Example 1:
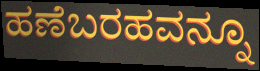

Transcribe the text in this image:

ಹಣೆಬರಹವನ್ನೂ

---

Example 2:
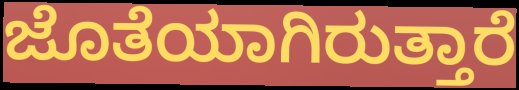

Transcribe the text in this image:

ಜೊತೆಯಾಗಿರುತ್ತಾರೆ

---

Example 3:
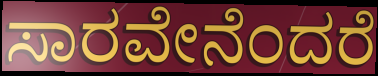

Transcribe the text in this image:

ಸಾರವೇನೆಂದರೆ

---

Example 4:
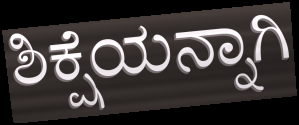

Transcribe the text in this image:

ಶಿಕ್ಷೆಯನ್ನಾಗಿ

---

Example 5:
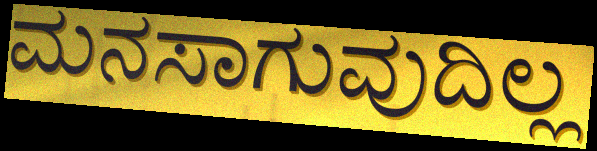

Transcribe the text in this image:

ಮನಸಾಗುವುದಿಲ್ಲ